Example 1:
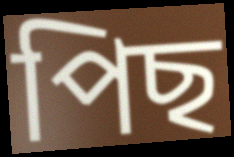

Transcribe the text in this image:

পিছ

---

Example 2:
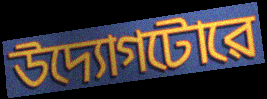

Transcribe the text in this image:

উদ্যোগটোৱে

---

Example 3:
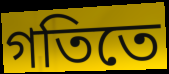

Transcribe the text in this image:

গতিতে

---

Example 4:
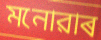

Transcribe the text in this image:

মনোৱাৰ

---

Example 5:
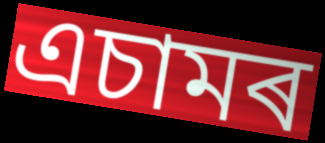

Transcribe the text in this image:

এচামৰ